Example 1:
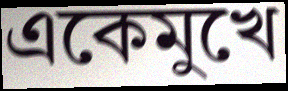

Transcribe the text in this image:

একেমুখে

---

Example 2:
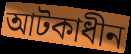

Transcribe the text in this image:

আটকাধীন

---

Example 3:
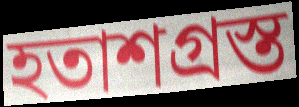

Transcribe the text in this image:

হতাশগ্ৰস্ত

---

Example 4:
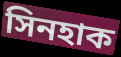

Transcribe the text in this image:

সিনহাক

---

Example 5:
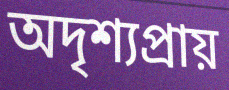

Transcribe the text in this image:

অদৃশ্যপ্ৰায়